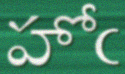
హోఁ